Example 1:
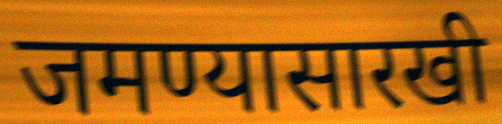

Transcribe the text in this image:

जमण्यासारखी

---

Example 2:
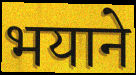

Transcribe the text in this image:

भयाने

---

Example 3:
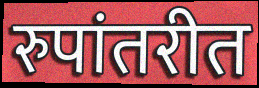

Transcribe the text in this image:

रुपांतरीत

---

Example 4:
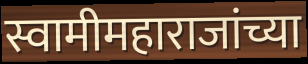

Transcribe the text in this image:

स्वामीमहाराजांच्या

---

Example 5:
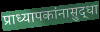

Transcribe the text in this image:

प्राध्यापकांनासुद्धा